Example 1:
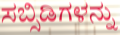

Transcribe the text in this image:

ಸಬ್ಸಿಡಿಗಳನ್ನು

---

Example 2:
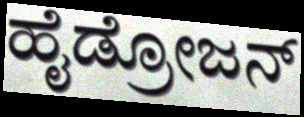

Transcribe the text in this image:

ಹೈಡ್ರೋಜನ್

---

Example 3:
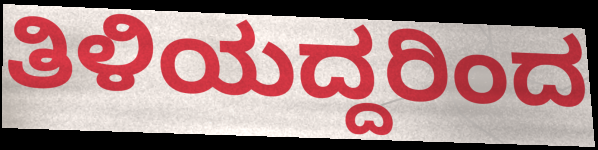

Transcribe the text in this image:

ತಿಳಿಯದ್ದರಿಂದ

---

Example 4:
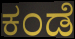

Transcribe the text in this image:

ಕಂಡೆ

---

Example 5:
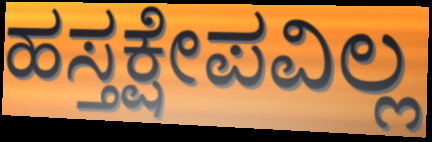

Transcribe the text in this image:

ಹಸ್ತಕ್ಷೇಪವಿಲ್ಲ